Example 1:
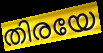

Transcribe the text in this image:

തിരയേ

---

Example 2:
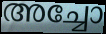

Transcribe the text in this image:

അച്ചോ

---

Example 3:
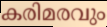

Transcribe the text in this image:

കരിമരവും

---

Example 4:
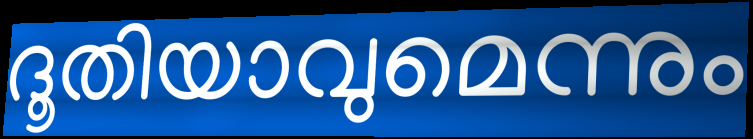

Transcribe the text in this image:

ദൂതിയാവുമെന്നും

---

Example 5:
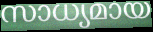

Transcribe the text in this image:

സാധ്യമായ